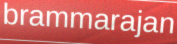
brammarajan